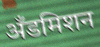
अँडमिशन